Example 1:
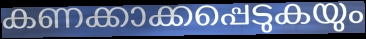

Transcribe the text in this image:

കണക്കാക്കപ്പെടുകയും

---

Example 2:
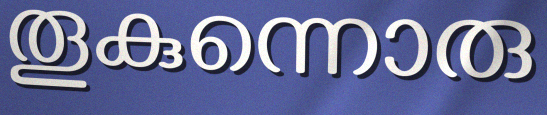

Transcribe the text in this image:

തൂകുന്നൊരു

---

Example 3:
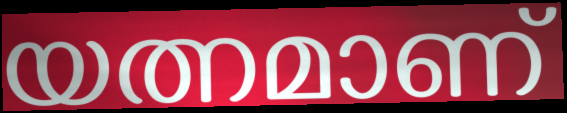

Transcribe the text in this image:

യത്നമാണ്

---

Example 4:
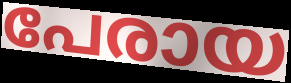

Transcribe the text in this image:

പേരായ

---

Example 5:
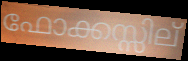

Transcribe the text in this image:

ഫോക്കസ്സില്